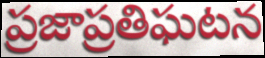
ప్రజాప్రతిఘటన